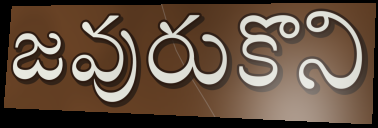
జవురుకొని